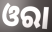
ଓରା